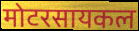
मोटरसायकल